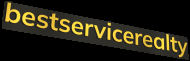
bestservicerealty